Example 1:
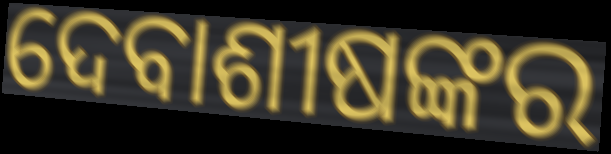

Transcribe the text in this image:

ଦେବାଶୀଷଙ୍କର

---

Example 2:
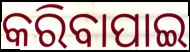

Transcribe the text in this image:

କରିବାପାଇ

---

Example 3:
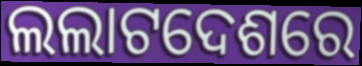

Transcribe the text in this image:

ଲଲାଟଦେଶରେ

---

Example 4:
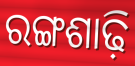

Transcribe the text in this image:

ରଙ୍ଗଶାଢ଼ି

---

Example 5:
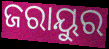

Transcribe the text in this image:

ଜରାୟୁର